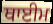
ਥਾਈਮ